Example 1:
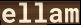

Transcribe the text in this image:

ellam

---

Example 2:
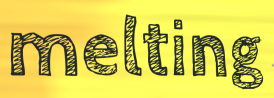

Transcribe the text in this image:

melting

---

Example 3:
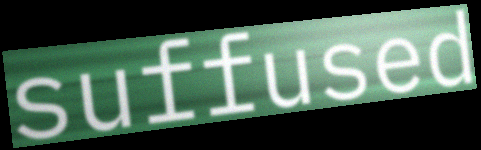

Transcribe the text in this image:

suffused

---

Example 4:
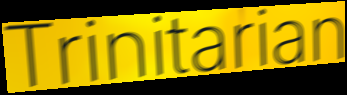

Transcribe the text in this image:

Trinitarian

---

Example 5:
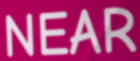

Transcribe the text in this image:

NEAR